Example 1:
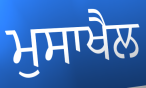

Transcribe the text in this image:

ਮੁਸਾਖੈਲ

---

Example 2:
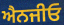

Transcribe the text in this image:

ਐਨਜੀਓ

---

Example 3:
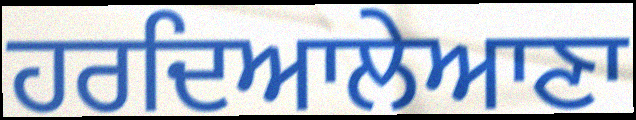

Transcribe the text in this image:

ਹਰਦਿਆਲੇਆਣਾ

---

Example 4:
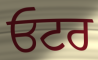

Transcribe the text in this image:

ਓਟਰ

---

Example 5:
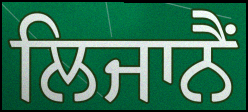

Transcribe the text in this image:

ਲਿਜਾਨੈਂ